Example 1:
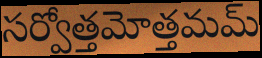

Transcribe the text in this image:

సర్వోత్తమోత్తమమ్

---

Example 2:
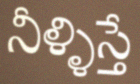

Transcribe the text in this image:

నీళ్ళిస్తే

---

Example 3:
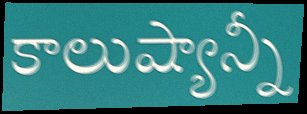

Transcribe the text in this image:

కాలుష్యాన్నీ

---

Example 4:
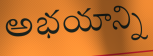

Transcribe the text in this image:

అభయాన్ని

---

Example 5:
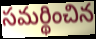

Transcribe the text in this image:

సమర్థించిన